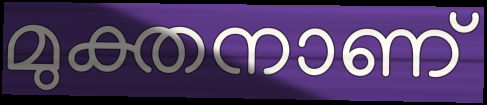
മുക്തനാണ്